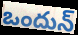
ఒందున్